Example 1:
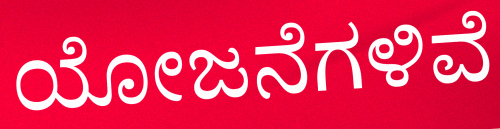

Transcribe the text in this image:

ಯೋಜನೆಗಳಿವೆ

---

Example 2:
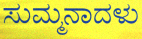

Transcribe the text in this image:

ಸುಮ್ಮನಾದಳು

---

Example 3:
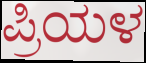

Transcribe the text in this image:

ಪ್ರಿಯಳ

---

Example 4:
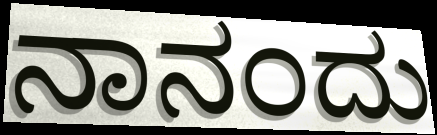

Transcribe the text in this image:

ನಾನಂದು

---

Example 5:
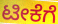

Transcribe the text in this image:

ಟೀಕೆಗೆ